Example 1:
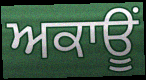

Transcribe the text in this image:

ਅਕਾਊਂ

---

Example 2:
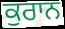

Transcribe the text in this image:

ਕੁਰਾਨ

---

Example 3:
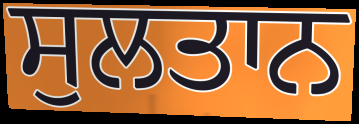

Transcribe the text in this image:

ਸੁਲਤਾਨ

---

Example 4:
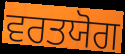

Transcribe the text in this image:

ਵਰਤਯੋਗ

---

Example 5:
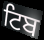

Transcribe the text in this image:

ਟਿਬ